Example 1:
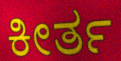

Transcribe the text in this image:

ಕೀರ್ತ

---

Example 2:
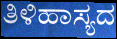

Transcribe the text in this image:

ತಿಳಿಹಾಸ್ಯದ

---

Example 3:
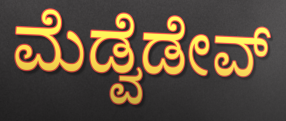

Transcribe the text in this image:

ಮೆಡ್ವೆಡೇವ್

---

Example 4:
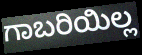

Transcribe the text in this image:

ಗಾಬರಿಯಿಲ್ಲ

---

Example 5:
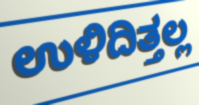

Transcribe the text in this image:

ಉಳಿದಿತ್ತಲ್ಲ